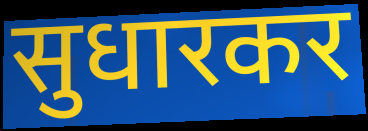
सुधारकर